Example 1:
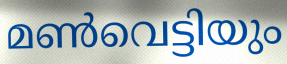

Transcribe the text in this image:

മൺവെട്ടിയും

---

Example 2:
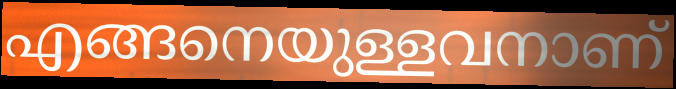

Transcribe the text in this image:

എങ്ങനെയുള്ളവനാണ്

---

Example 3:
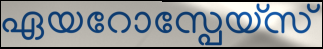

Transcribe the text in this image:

ഏയറോസ്പേയ്സ്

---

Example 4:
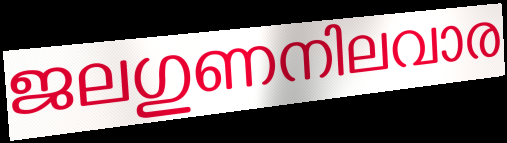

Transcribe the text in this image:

ജലഗുണനിലവാര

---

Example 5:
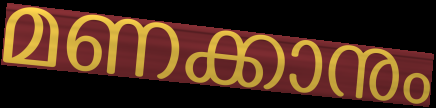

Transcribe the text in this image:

മണക്കാനും